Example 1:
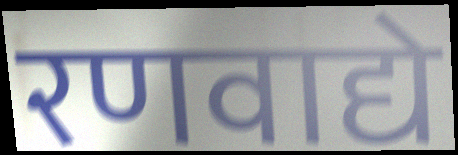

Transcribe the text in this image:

रणवाद्ये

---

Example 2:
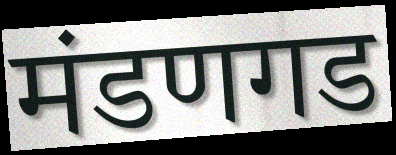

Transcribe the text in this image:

मंडणगड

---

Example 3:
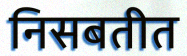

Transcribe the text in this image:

निसबतीत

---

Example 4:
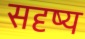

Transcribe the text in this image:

सदृष्य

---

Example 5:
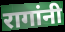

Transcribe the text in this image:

रागांनी